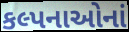
કલ્પનાઓનાં